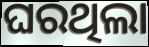
ଘରଥିଲା